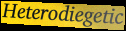
Heterodiegetic